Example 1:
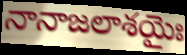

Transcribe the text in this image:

నానాజలాశయైః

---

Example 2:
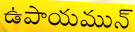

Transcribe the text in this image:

ఉపాయమున్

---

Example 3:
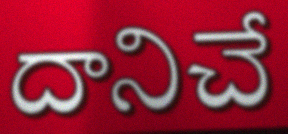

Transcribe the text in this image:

దానిచే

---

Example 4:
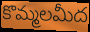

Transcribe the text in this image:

కొమ్మలమీద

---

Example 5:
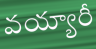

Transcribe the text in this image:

వయ్యారీ